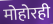
मोहोरही